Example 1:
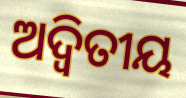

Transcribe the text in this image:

ଅଦ୍ଵିତୀୟ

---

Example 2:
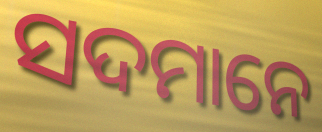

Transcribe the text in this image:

ସଦମାନେ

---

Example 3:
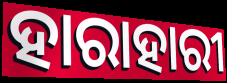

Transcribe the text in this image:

ହାରାହାରୀ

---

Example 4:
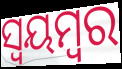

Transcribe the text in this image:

ସ୍ଵୟମ୍ବର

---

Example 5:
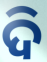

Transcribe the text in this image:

ଦି